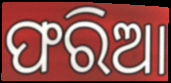
ଫରିଆ